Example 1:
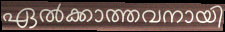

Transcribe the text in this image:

ഏൽക്കാത്തവനായി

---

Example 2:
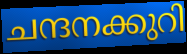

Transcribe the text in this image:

ചന്ദനക്കുറി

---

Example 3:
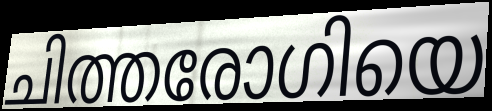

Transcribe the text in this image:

ചിത്തരോഗിയെ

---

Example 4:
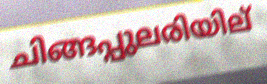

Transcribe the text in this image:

ചിങ്ങപ്പുലരിയില്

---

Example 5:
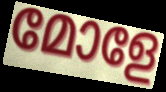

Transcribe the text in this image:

മോളേ